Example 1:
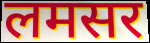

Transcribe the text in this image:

लमसर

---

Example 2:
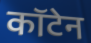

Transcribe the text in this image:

कॉटेन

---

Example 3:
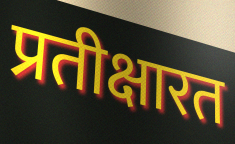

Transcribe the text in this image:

प्रतीक्षारत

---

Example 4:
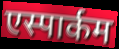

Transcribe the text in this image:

एस्पार्कम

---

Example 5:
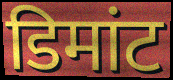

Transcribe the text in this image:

डिमांट